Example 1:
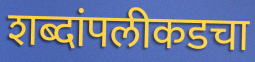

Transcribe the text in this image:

शब्दांपलीकडचा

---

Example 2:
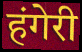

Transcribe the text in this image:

हंगेरी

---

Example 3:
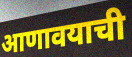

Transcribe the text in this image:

आणावयाची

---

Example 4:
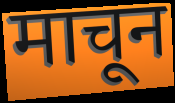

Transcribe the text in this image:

माचून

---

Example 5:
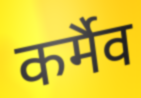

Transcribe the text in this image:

कर्मैव